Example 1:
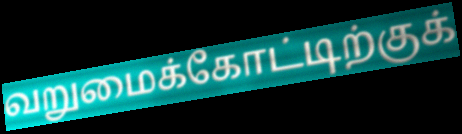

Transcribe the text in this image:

வறுமைக்கோட்டிற்குக்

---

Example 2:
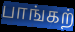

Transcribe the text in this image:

பாங்கற்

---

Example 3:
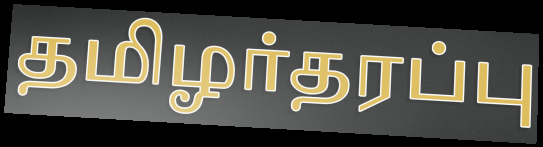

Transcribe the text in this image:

தமிழர்தரப்பு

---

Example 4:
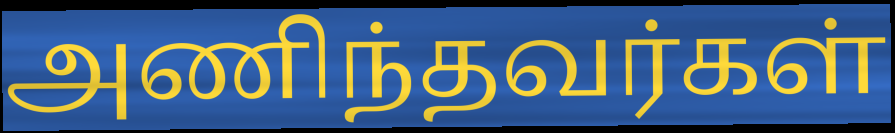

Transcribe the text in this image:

அணிந்தவர்கள்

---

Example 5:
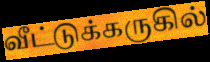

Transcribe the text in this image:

வீட்டுக்கருகில்